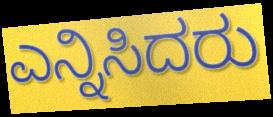
ಎನ್ನಿಸಿದರು